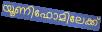
യൂണിഫോമിലേക്ക്